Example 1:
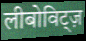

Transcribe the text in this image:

लीबोविट्ज़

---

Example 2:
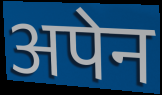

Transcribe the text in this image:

अपेन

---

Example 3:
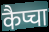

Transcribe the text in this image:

कैप्चा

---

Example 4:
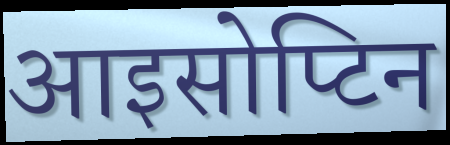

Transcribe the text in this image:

आइसोप्टिन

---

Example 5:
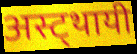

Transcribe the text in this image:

अस्ट्थायी